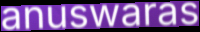
anuswaras